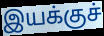
இயக்குச்